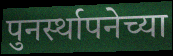
पुनर्स्थापनेच्या